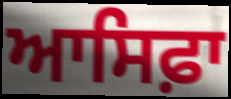
ਆਸਿਫ਼ਾ